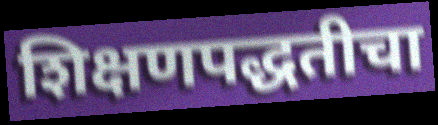
शिक्षणपद्धतीचा